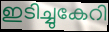
ഇടിച്ചുകേറി